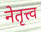
नेतृत्त्व